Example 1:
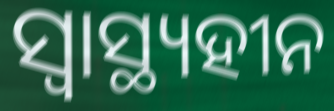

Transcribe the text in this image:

ସ୍ୱାସ୍ଥ୍ୟହୀନ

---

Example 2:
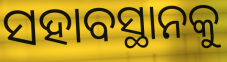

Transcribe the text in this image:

ସହାବସ୍ଥାନକୁ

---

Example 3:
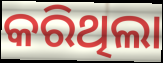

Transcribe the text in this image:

କରିଥିଲା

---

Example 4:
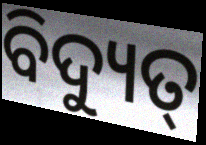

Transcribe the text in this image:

ବିଦ୍ୟୁତ୍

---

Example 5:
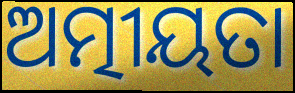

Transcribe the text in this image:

ଅତ୍ମୀୟତା